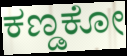
ಕಣ್ಡಕೋ